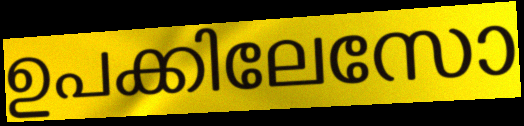
ഉപക്കിലേസോ